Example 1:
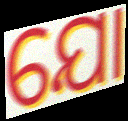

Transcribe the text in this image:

ଯୋ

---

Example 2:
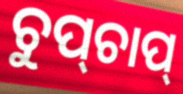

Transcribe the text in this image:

ଚୁପ୍‌ଚାପ୍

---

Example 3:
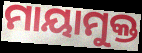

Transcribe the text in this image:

ମାୟାମୁକ୍ତ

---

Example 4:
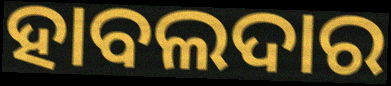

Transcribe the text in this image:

ହାବଲଦାର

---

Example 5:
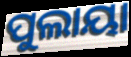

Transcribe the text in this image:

ପୁଲାୟା